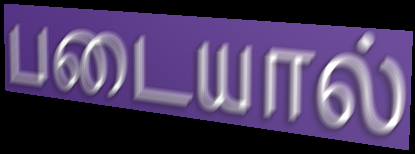
படையால்